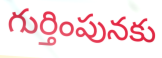
గుర్తింపునకు